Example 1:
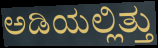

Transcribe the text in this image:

ಅಡಿಯಲ್ಲಿತ್ತು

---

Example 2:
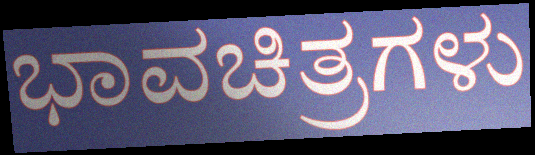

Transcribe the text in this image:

ಭಾವಚಿತ್ರಗಳು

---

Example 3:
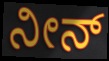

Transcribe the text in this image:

ನೀನ್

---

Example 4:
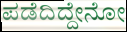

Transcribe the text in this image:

ಪಡೆದಿದ್ದೇನೋ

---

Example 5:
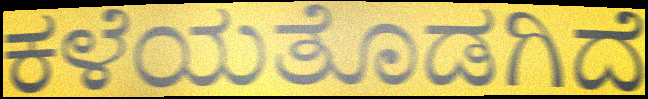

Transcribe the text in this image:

ಕಳೆಯತೊಡಗಿದೆ